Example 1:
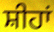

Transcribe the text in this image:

ਸ਼ੀਹਾਂ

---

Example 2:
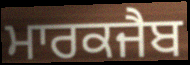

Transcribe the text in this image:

ਮਾਰਕਜੈਬ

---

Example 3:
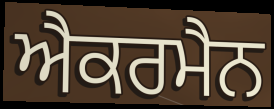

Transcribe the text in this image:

ਐਕਰਮੈਨ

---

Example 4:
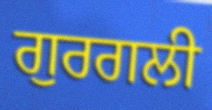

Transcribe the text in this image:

ਗੁਰਗਲੀ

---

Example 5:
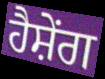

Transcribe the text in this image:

ਹੈਸ਼ੇਂਗ